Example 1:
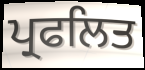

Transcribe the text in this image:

ਪ੍ਰਫਲਿਤ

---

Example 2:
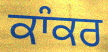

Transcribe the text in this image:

ਕਾੰਕਰ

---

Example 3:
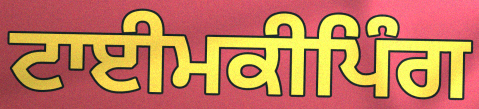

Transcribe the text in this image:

ਟਾਈਮਕੀਪਿੰਗ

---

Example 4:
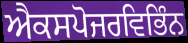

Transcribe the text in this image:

ਐਕਸਪੋਜਰਵਿਭਿੰਨ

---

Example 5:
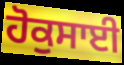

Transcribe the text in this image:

ਹੋਕੁਸਾਈ